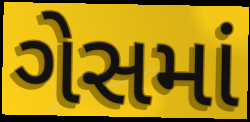
ગેસમાં